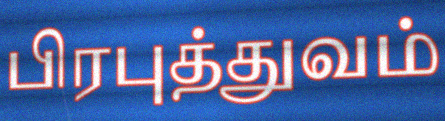
பிரபுத்துவம்